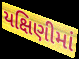
યક્ષિણીમાં